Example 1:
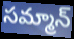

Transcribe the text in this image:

సమ్మాన్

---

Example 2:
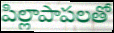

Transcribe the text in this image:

పిల్లాపాపలతో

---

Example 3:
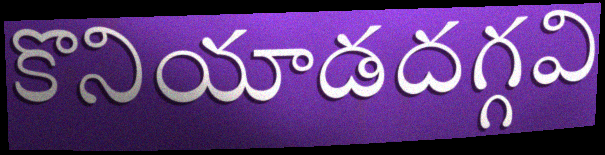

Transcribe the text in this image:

కొనియాడదగ్గవి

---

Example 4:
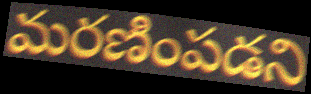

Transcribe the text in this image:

మరణింపడని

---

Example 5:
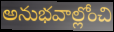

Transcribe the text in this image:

అనుభవాల్లోంచి